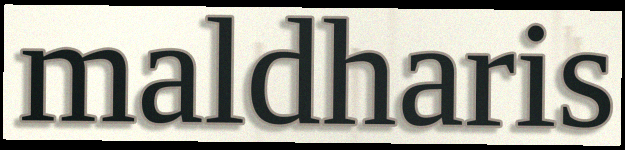
maldharis